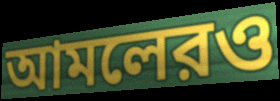
আমলেরও